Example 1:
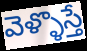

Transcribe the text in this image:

వెళ్ళొస్తే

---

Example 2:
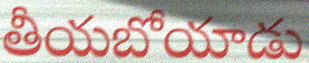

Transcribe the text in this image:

తీయబోయాడు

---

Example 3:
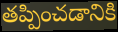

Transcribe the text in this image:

తప్పించడానికి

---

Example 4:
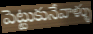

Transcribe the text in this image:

పెట్టుకునేవాళ్ళు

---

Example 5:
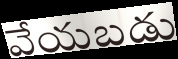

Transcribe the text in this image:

వేయబడు